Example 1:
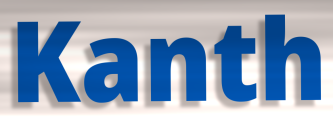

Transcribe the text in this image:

Kanth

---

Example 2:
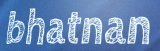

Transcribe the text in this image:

bhatnan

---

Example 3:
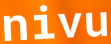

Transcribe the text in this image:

nivu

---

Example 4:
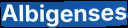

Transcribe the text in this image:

Albigenses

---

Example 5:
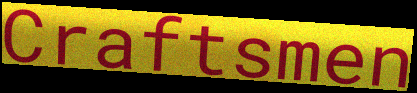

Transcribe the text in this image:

Craftsmen